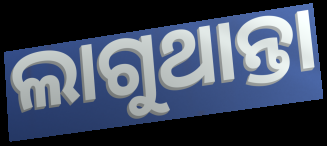
ଲାଗୁଥାନ୍ତା